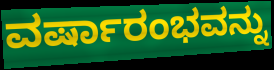
ವರ್ಷಾರಂಭವನ್ನು